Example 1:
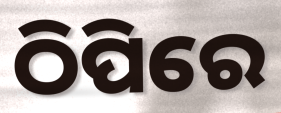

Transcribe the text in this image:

ଠିପିରେ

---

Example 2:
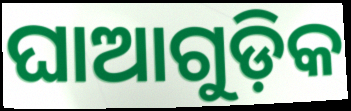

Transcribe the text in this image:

ଘାଆଗୁଡ଼ିକ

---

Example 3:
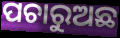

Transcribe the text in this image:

ପଚାରୁଅଛ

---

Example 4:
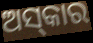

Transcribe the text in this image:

ଅସ୍‌କାର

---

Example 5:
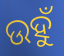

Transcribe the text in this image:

ଉହୁଁ